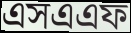
এসএএফ